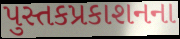
પુસ્તકપ્રકાશનના